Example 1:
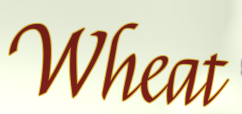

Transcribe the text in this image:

Wheat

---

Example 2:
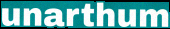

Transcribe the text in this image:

unarthum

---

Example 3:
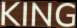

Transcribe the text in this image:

KING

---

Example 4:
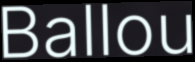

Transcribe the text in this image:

Ballou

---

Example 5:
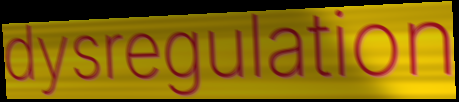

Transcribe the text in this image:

dysregulation